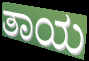
ತಾಯ